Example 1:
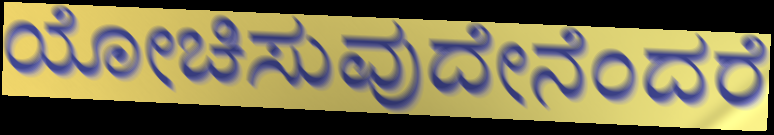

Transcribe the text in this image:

ಯೋಚಿಸುವುದೇನೆಂದರೆ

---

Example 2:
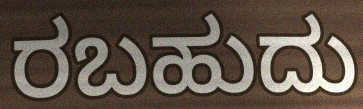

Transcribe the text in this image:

ರಬಹುದು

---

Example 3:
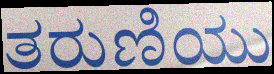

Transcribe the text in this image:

ತರುಣಿಯು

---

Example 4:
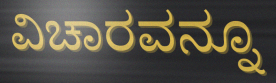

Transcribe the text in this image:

ವಿಚಾರವನ್ನೂ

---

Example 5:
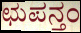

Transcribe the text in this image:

ಛುಪನ್ತಂ